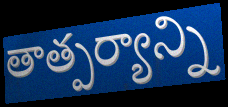
తాత్పర్యాన్ని